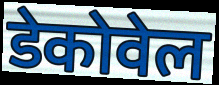
डेकोवेल